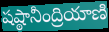
షష్ఠానీంద్రియాణి